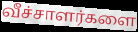
வீச்சாளர்களை